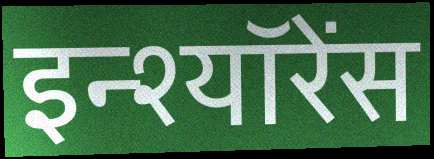
इन्श्यॉरेंस